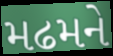
મઢમને